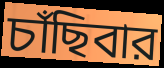
চাঁছিবার